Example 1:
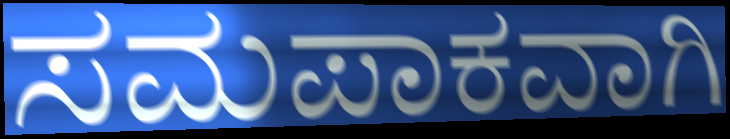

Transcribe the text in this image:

ಸಮಪಾಕವಾಗಿ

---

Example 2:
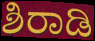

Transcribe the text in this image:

ಶಿರಾಡಿ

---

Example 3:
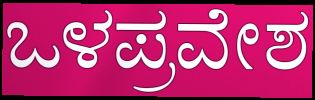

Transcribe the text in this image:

ಒಳಪ್ರವೇಶ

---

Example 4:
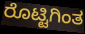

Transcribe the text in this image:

ರೊಟ್ಟಿಗಿಂತ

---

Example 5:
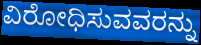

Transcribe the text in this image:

ವಿರೋಧಿಸುವವರನ್ನು